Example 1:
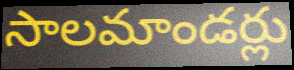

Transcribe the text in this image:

సాలమాండర్లు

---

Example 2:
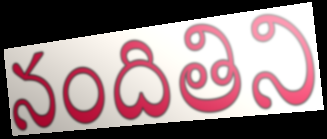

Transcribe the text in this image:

నందితిని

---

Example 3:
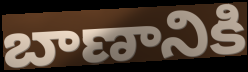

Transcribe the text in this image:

బాణానికి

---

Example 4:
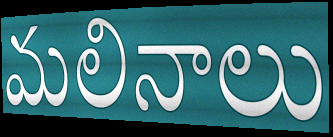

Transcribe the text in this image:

మలినాలు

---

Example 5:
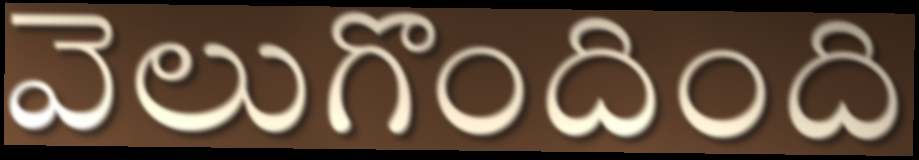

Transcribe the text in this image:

వెలుగొందింది